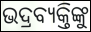
ଭଦ୍ରବ୍ୟକ୍ତିଙ୍କୁ